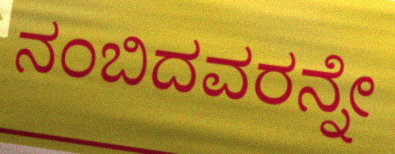
ನಂಬಿದವರನ್ನೇ